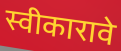
स्वीकारावे